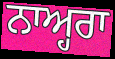
ਨਾਅ੍ਹਰਾ